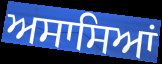
ਅਸਾਸਿਆਂ